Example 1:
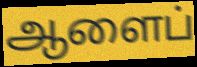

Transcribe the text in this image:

ஆளைப்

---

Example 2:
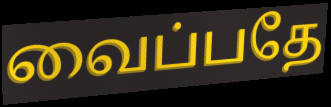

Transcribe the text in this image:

வைப்பதே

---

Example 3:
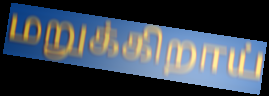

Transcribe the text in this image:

மறுக்கிறாய்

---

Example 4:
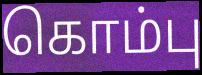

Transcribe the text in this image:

கொம்பு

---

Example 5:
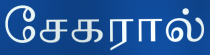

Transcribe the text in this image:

சேகரால்